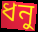
ধনু